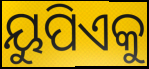
ୟୁପିଏକୁ